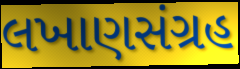
લખાણસંગ્રહ